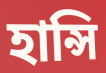
হান্সি